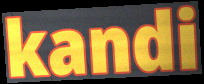
kandi